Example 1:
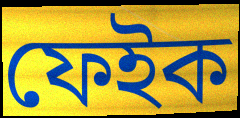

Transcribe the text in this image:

ফেইক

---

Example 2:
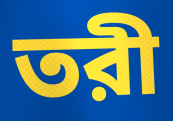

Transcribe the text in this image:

তরী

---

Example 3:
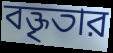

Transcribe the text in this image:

বক্তৃতার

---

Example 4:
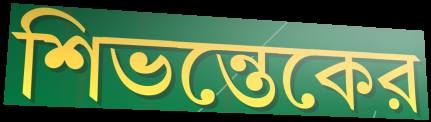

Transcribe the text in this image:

শিভন্তেকের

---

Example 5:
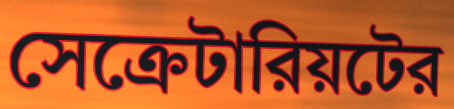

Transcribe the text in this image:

সেক্রেটারিয়টের